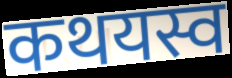
कथयस्व